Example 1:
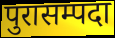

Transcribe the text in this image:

पुरासम्पदा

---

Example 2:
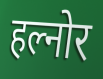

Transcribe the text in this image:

हल्नोर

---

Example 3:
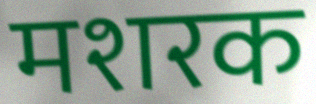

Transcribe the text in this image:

मशरक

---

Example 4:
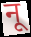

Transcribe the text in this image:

नू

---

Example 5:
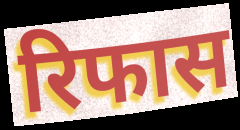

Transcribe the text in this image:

रिफास